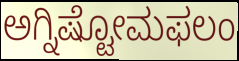
ಅಗ್ನಿಷ್ಟೋಮಫಲಂ